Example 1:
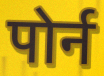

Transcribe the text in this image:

पोर्न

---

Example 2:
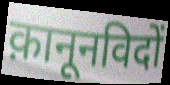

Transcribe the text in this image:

क़ानूनविदों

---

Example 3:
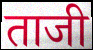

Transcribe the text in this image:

ताजी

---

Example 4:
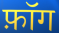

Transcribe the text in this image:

फ़ॉग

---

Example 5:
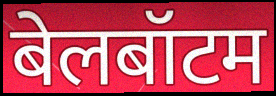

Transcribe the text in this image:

बेलबॉटम